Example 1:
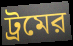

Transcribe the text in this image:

ট্রমের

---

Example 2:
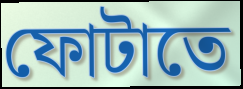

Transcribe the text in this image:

ফোটাতে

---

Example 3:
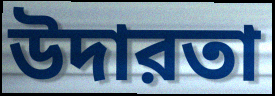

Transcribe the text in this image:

উদারতা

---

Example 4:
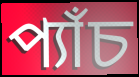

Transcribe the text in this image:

প্যাঁচ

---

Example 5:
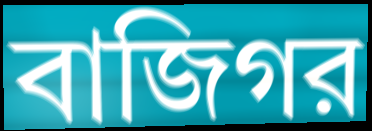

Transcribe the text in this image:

বাজিগর